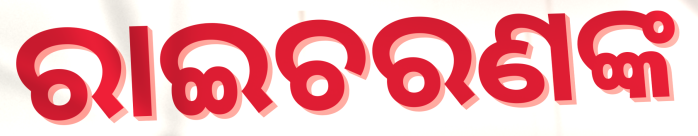
ରାଇଚରଣଙ୍କ